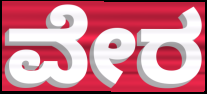
ವೇರ